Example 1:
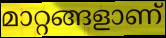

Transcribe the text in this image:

മാറ്റങ്ങളാണ്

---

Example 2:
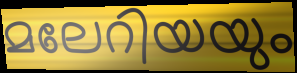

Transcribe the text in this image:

മലേറിയയും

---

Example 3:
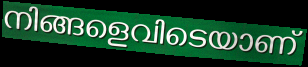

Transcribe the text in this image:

നിങ്ങളെവിടെയാണ്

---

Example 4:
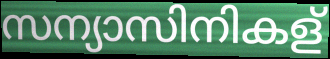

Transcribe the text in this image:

സന്യാസിനികള്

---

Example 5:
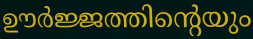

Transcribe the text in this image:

ഊർജ്ജത്തിന്റെയും